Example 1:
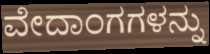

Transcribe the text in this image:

ವೇದಾಂಗಗಳನ್ನು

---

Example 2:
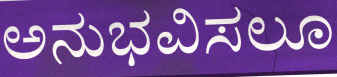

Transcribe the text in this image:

ಅನುಭವಿಸಲೂ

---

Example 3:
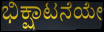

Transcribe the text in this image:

ಭಿಕ್ಷಾಟನೆಯೇ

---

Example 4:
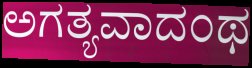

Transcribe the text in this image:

ಅಗತ್ಯವಾದಂಥ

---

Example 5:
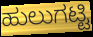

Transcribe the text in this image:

ಹುಲುಗಟ್ಟಿ